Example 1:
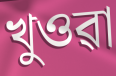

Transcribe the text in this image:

খুওৱা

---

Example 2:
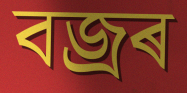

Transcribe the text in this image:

বজ্ৰৰ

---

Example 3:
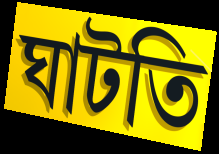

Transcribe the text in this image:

ঘাটতি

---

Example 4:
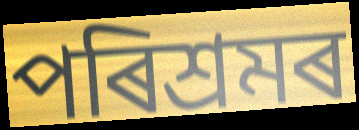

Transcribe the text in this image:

পৰিশ্ৰমৰ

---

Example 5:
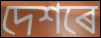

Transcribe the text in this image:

দেশৰে